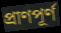
প্রাণপূর্ণ